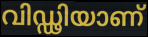
വിഡ്ഢിയാണ്